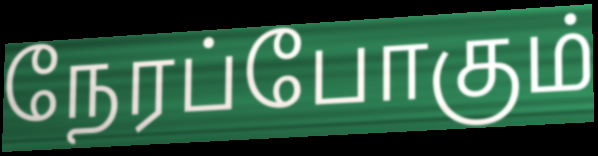
நேரப்போகும்